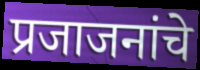
प्रजाजनांचे